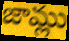
జామ్లు